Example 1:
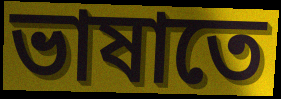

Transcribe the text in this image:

ভাষাতে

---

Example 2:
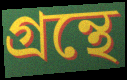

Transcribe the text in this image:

গ্রন্থে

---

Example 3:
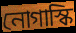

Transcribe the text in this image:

নোগাস্কি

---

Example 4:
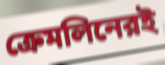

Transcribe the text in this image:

ক্রেমলিনেরই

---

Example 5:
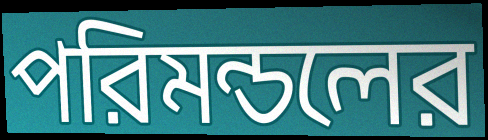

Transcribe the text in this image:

পরিমন্ডলের